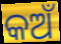
କଅଁ